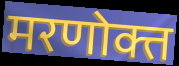
मरणोक्त